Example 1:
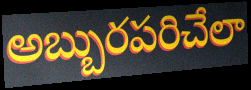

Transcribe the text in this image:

అబ్బురపరిచేలా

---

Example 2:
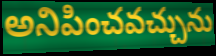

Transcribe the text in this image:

అనిపించవచ్చును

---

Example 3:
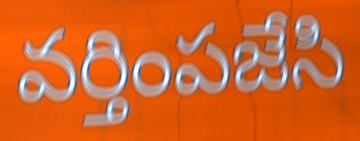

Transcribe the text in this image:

వర్తింపజేసి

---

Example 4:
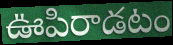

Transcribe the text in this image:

ఊపిరాడటం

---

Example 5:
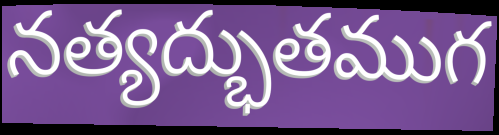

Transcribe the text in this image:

నత్యద్భుతముగ